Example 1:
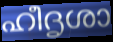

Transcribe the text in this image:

ഹീദൃശാ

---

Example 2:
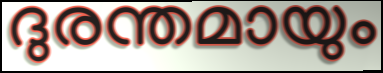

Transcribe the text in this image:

ദുരന്തമായും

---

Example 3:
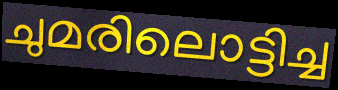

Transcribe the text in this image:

ചുമരിലൊട്ടിച്ച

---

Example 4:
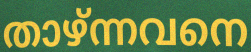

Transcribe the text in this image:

താഴ്ന്നവനെ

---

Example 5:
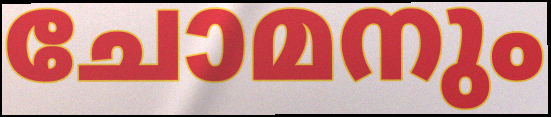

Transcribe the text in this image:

ചോമനും